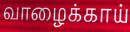
வாழைக்காய்